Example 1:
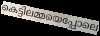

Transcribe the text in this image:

കെട്ടിലമ്മയെപ്പോലെ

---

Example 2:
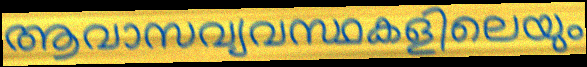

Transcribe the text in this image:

ആവാസവ്യവസ്ഥകളിലെയും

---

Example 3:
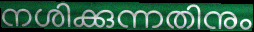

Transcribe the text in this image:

നശിക്കുന്നതിനും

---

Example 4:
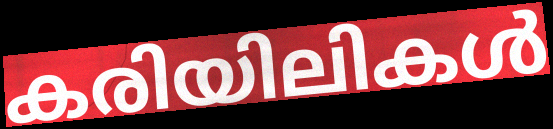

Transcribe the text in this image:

കരിയിലികൾ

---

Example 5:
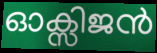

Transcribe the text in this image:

ഓക്സിജൻ